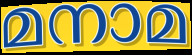
മനാമ